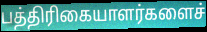
பத்திரிகையாளர்களைச்